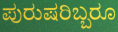
ಪುರುಷರಿಬ್ಬರೂ